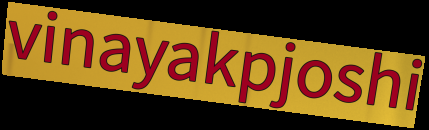
vinayakpjoshi